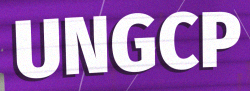
UNGCP